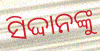
ସିଦ୍ଦାନଙ୍କୁ